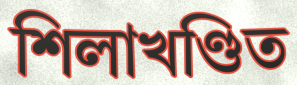
শিলাখণ্ডিত